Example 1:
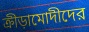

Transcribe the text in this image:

ক্রীড়ামোদীদের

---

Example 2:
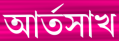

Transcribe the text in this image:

আর্তসাখ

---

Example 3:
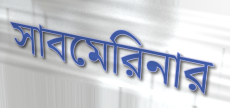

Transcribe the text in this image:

সাবমেরিনার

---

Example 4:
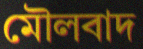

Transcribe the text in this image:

মৌলবাদ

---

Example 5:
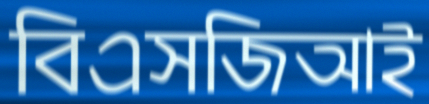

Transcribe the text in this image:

বিএসজিআই